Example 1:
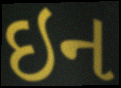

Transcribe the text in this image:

ઇન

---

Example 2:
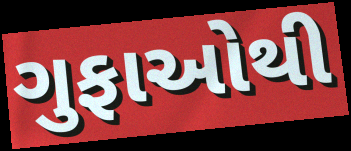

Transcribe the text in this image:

ગુફાઓથી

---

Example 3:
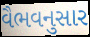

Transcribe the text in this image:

વૈભવનુસાર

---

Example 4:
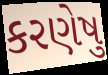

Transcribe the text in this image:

કરણેષુ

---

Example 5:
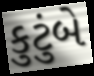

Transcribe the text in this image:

કુટુંબે